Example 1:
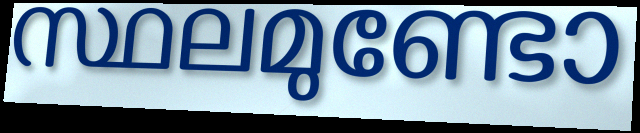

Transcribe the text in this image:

സ്ഥലമുണ്ടോ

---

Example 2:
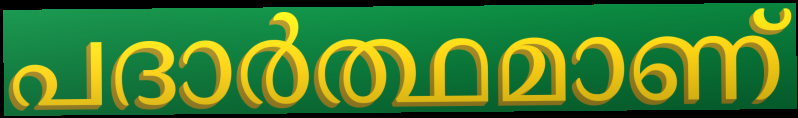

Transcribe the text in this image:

പദാർത്ഥമാണ്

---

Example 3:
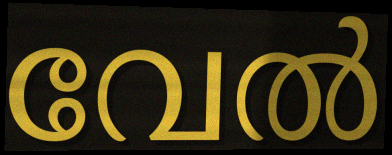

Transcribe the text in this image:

വേൽ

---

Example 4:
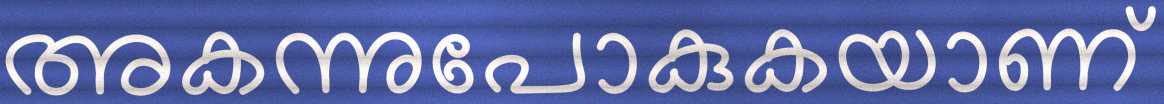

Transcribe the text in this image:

അകന്നുപോകുകയാണ്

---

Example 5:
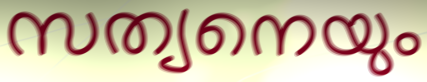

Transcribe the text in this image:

സത്യനെയും